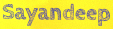
Sayandeep